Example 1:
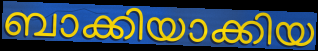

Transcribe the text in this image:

ബാക്കിയാക്കിയ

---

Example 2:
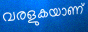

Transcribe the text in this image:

വരളുകയാണ്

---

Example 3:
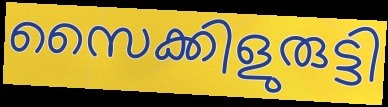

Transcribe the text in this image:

സൈക്കിളുരുട്ടി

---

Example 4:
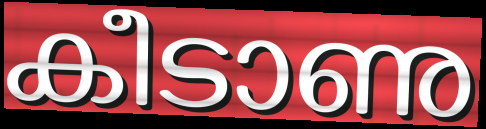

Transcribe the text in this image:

കീടാണു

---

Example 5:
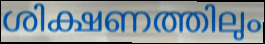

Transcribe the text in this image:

ശിക്ഷണത്തിലും